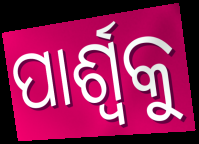
ପାର୍ଶ୍ଵକୁ